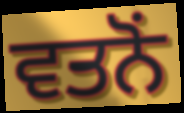
ਵਤਨੋਂ